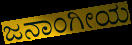
ಜನಾಂಗೀಯ